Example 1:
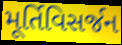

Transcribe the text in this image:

મૂર્તિવિસર્જન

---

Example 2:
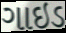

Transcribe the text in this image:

ગાઇડ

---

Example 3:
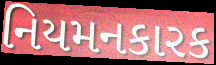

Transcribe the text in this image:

નિયમનકારક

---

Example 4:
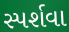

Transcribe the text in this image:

સ્પર્શવા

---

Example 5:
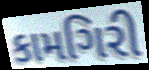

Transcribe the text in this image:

કામગિરી